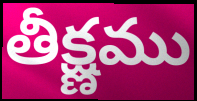
తీక్ష్ణము